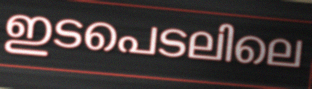
ഇടപെടലിലെ